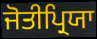
ਜੋਤੀਪ੍ਰਿਯਾ